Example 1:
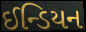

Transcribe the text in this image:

ઈન્ડિયન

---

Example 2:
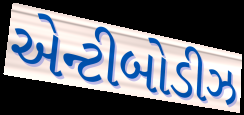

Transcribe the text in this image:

એન્ટીબોડીઝ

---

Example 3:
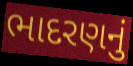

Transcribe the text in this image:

ભાદરણનું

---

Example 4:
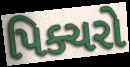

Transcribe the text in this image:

પિક્ચરો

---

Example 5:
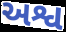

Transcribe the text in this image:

અશ્વ